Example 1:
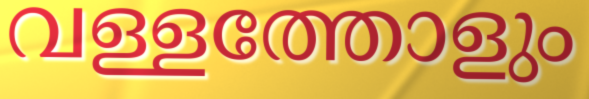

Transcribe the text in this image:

വള്ളത്തോളും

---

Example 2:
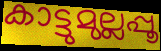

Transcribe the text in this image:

കാട്ടുമുല്ലപ്പൂ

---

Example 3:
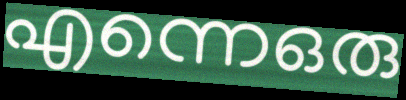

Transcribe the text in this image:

എന്നെഒരു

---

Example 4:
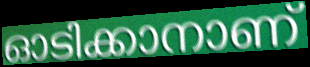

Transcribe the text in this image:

ഓടിക്കാനാണ്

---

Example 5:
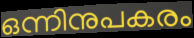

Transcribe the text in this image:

ഒന്നിനുപകരം